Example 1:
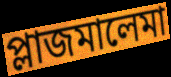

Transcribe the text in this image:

প্লাজমালেমা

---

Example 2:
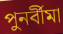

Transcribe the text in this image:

পুনর্বীমা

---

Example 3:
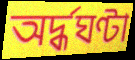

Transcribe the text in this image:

অর্দ্ধঘণ্টা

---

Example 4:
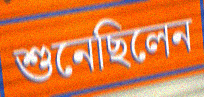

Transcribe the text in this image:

শুনেছিলেন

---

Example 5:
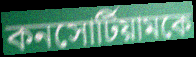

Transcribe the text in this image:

কনসোর্টিয়ামকে